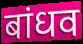
बांधव